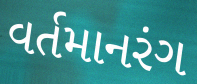
વર્તમાનરંગ